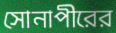
সোনাপীরের